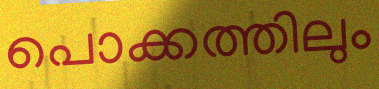
പൊക്കത്തിലും